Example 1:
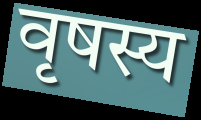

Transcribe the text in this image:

वृषस्य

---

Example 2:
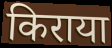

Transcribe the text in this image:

किराया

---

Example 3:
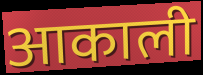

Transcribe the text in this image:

आकाली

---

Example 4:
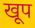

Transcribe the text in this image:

खूप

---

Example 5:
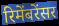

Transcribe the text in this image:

रिमेंबरेंसर